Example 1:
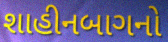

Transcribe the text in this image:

શાહીનબાગનો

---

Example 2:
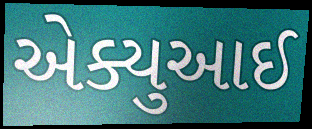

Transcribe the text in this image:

એક્યુઆઈ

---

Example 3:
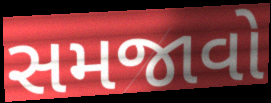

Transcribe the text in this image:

સમજાવો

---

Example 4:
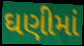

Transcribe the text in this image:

ઘણીમાં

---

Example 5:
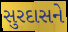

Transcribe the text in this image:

સુરદાસને